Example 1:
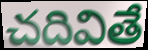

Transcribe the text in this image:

చదివితే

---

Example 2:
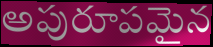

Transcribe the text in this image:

అపురూపమైన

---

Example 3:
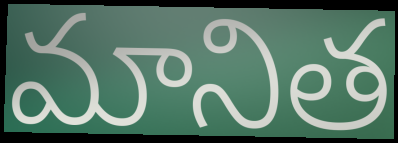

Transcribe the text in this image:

మానిత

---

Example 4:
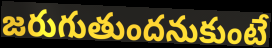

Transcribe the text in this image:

జరుగుతుందనుకుంటే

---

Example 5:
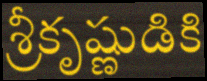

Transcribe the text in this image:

శ్రీకృష్ణుడికి